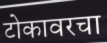
टोकावरचा